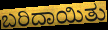
ಬರಿದಾಯಿತು